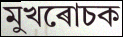
মুখৰোচক